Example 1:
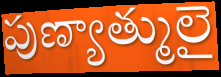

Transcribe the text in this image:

పుణ్యాత్ములై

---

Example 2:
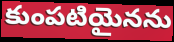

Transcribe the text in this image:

కుంపటియైనను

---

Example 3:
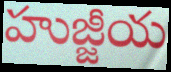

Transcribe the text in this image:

హుజ్జీయ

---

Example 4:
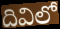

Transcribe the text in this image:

దివిలో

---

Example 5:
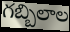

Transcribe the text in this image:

గబ్బిలాల